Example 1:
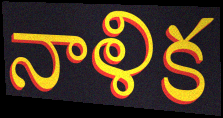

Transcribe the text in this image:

నాళిక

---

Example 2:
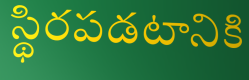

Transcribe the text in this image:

స్థిరపడటానికి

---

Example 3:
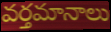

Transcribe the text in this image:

వర్తమానాలు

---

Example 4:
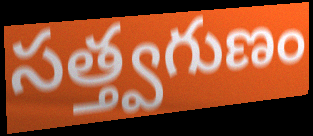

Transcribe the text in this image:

సత్త్వగుణం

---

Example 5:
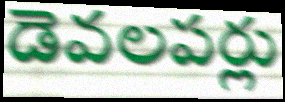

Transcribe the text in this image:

డెవలపర్లు